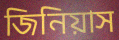
জিনিয়াস